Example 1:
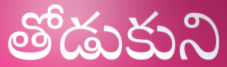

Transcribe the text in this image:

తోడుకుని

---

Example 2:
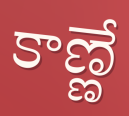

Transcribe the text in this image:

కాణ్ణే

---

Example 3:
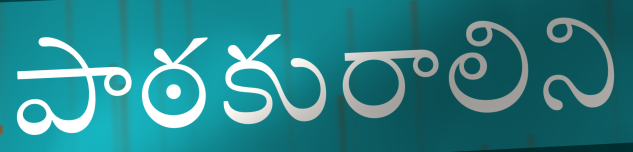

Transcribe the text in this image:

పాఠకురాలిని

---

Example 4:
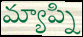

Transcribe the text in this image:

మ్యాప్ని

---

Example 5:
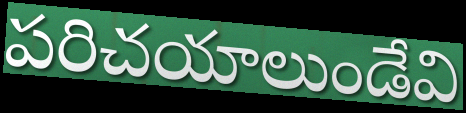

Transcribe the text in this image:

పరిచయాలుండేవి